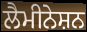
ਲੈਮੀਨੇਸ਼ਨ